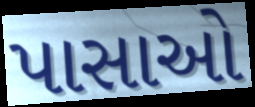
પાસાઓ